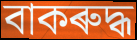
বাকৰুদ্ধ